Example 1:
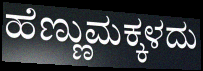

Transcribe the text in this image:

ಹೆಣ್ಣುಮಕ್ಕಳದು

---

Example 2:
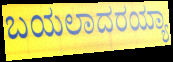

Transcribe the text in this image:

ಬಯಲಾದರಯ್ಯಾ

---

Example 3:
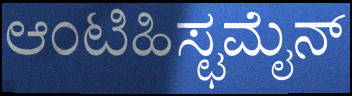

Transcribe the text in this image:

ಆಂಟಿಹಿಸ್ಟಮೈನ್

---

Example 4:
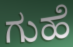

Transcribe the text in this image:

ಗುಹೆ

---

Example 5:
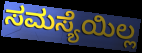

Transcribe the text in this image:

ಸಮಸ್ಯೆಯಿಲ್ಲ